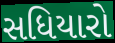
સધિયારો